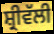
ਸ਼੍ਰੀਵੱਲੀ